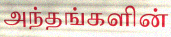
அந்தங்களின்